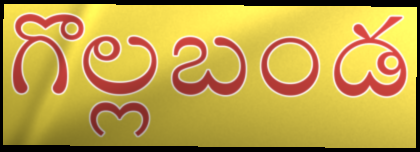
గొల్లబండ